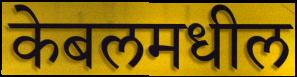
केबलमधील